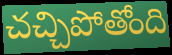
చచ్చిపోతోంది